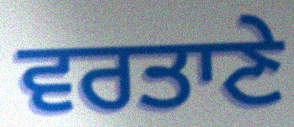
ਵਰਤਾਣੇ